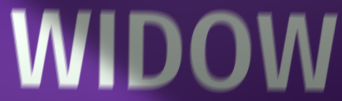
WIDOW